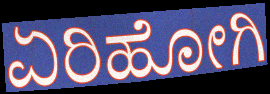
ಏರಿಹೋಗಿ